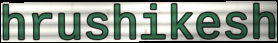
hrushikesh